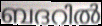
ബദറിൽ